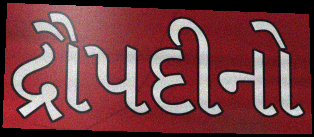
દ્રૌપદીનો